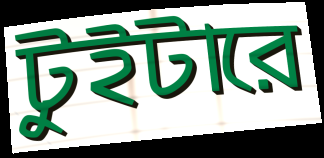
টুইটারে